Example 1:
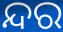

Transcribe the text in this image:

ନ୍ଦର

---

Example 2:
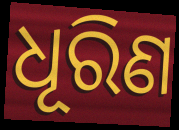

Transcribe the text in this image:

ଧୂରିଣ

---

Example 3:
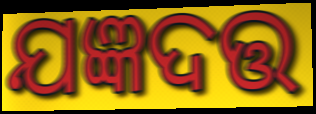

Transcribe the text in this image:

ଯଜ୍ଞଦତ୍ତ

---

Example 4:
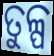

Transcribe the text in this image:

ତୁଳ୍ପ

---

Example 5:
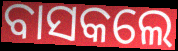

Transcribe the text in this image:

ବାସକଲେ